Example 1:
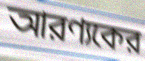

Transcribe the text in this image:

আরণ্যকের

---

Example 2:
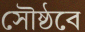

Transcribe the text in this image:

সৌষ্ঠবে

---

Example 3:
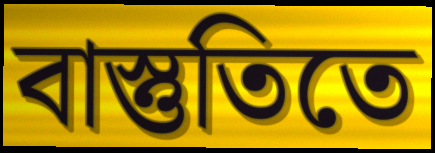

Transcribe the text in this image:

বাস্তুতিতে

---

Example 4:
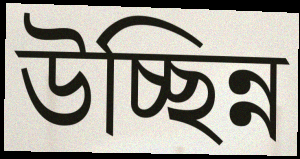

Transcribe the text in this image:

উচ্ছিন্ন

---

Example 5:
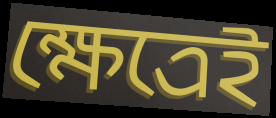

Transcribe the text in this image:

ক্ষেত্রেই